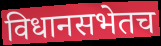
विधानसभेतच